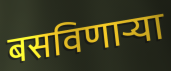
बसविणार्‍या